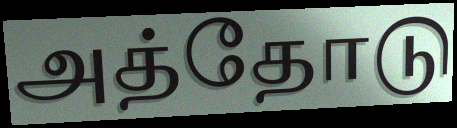
அத்தோடு